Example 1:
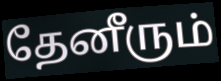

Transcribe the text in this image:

தேனீரும்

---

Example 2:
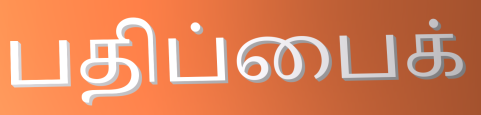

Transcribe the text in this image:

பதிப்பைக்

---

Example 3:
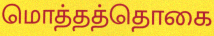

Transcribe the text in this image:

மொத்தத்தொகை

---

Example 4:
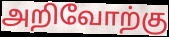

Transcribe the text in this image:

அறிவோற்கு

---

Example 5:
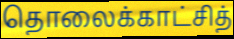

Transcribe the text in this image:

தொலைக்காட்சித்